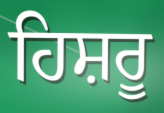
ਹਿਸ਼ਰੂ